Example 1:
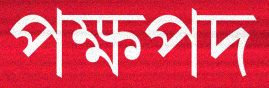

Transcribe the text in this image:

পক্ষপদ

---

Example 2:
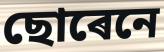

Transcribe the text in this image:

ছোৰেনে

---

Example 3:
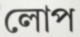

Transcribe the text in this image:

লোপ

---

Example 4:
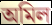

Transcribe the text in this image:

অমিল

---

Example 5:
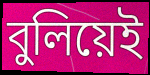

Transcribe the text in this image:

বুলিয়েই